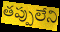
తప్పులేని